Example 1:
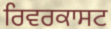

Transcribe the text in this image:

ਰਿਵਰਕਾਸਟ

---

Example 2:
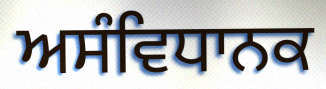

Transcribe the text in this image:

ਅਸੰਵਿਧਾਨਕ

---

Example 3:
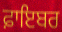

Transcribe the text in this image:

ਫ਼ਾਇਬਰ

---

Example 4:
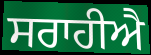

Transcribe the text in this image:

ਸਰਾਹੀਐ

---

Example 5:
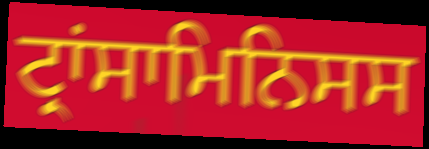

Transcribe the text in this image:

ਟ੍ਰਾਂਸਾਮਿਨਿਸਸ